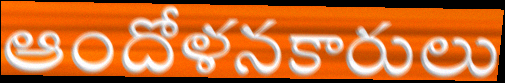
ఆందోళనకారులు